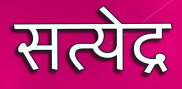
सत्येद्र